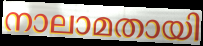
നാലാമതായി